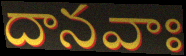
దానవాః